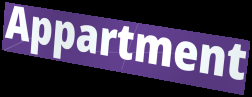
Appartment